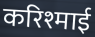
करिश्माई